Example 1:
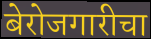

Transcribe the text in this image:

बेरोजगारीचा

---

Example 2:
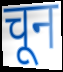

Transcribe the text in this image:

चून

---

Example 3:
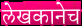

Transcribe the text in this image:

लेखकानेच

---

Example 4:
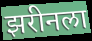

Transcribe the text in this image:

झरीनला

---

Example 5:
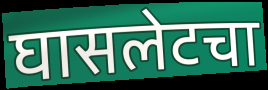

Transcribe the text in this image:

घासलेटचा